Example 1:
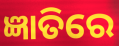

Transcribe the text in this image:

ଜ୍ଞାତିରେ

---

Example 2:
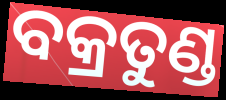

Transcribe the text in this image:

ବକ୍ରତୁଣ୍ଡ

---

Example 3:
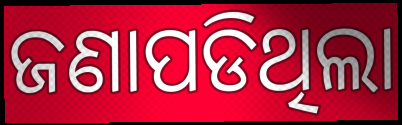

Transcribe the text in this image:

ଜଣାପଡିଥିଲା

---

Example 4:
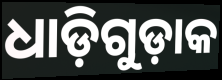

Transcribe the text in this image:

ଧାଡ଼ିଗୁଡ଼ାକ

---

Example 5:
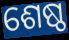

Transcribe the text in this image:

ଶେଷ୍ଠ